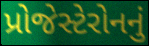
પ્રોજેસ્ટેરોનનું